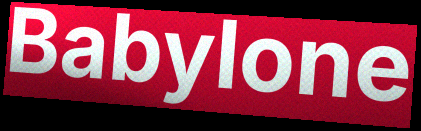
Babylone